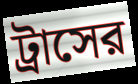
ট্রাসের